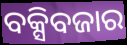
ବକ୍ସିବଜାର